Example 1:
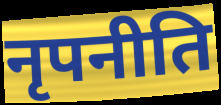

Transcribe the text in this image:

नृपनीति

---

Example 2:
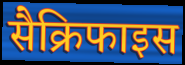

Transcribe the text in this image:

सैक्रिफाइस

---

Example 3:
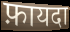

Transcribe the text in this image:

फ़ायदा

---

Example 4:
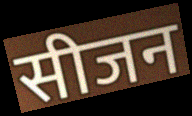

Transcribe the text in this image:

सीजन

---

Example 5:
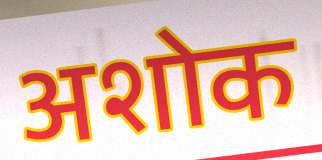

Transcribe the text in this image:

अशोक